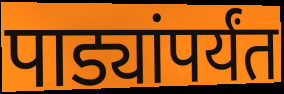
पाड्यांपर्यंत